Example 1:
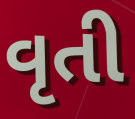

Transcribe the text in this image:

વૃતી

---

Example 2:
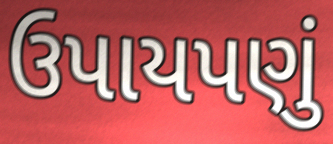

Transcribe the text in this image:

ઉપાયપણું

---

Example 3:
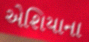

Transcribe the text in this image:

એશિયાના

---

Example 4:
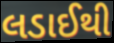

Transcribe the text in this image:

લડાઈથી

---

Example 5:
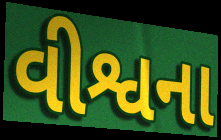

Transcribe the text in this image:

વીશ્વના